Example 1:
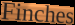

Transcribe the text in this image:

Finches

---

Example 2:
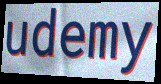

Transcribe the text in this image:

udemy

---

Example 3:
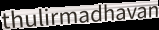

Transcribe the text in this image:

thulirmadhavan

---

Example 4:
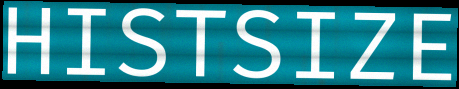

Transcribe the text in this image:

HISTSIZE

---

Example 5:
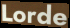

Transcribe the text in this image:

Lorde